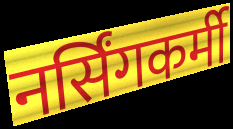
नर्सिंगकर्मी